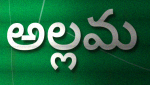
అల్లమ